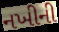
નખીની